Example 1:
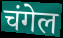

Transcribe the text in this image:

चंगेल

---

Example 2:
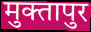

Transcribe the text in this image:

मुक्तापुर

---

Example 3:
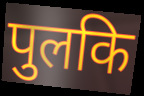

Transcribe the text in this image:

पुलकि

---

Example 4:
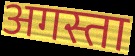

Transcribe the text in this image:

अगस्ता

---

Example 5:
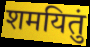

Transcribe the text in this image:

शमयितुं